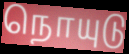
நொயுடு